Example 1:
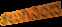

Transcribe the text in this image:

ತೆಲುಗಿನಿಂದ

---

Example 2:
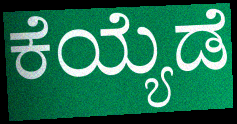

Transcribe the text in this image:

ಕೆಯ್ಯೆಡೆ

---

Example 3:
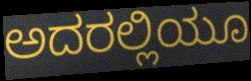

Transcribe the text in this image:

ಅದರಲ್ಲಿಯೂ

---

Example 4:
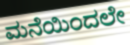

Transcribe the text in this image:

ಮನೆಯಿಂದಲೇ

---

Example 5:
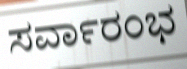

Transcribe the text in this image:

ಸರ್ವಾರಂಭ